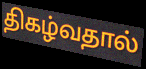
திகழ்வதால்